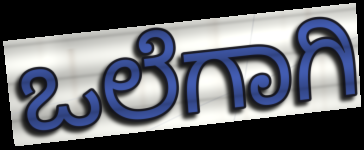
ಒಲೆಗಾಗಿ